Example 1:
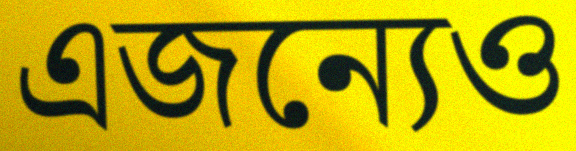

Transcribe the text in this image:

এজন্যেও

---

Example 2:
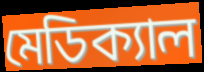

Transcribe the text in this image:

মেডিক্যাল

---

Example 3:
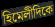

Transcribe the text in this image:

হিমেলীদিকে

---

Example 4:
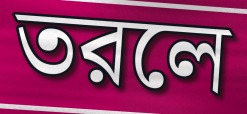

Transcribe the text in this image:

তরলে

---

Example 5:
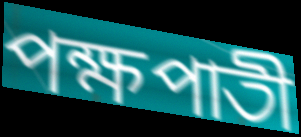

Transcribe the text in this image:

পক্ষপাতী